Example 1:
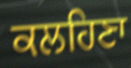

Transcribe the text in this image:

ਕਲਹਿਣਾ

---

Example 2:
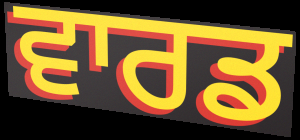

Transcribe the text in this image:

ਵਾਰਡ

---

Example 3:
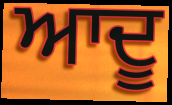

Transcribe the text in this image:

ਆਦੂ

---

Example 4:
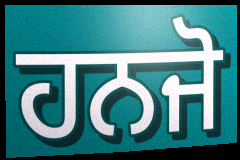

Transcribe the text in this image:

ਹਨਜੋ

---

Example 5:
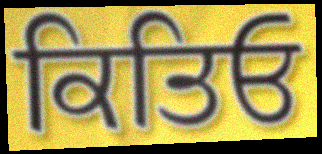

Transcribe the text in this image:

ਕਿਤਿਓ